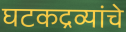
घटकद्रव्यांचे